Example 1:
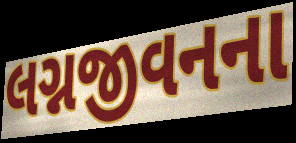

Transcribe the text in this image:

લગ્નજીવનના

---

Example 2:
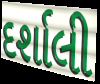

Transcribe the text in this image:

દર્શાલી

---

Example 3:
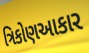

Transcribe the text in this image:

ત્રિકોણઆકાર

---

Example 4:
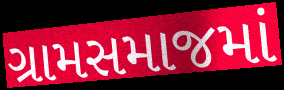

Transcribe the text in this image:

ગ્રામસમાજમાં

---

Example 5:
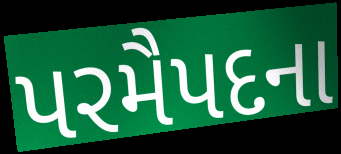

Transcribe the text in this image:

પરમૈપદના